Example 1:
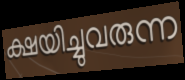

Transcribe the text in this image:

ക്ഷയിച്ചുവരുന്ന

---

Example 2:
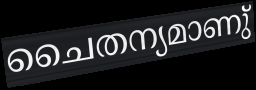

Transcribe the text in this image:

ചൈതന്യമാണു്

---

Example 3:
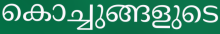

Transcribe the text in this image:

കൊച്ചുങ്ങളുടെ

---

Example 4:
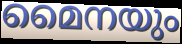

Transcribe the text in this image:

മൈനയും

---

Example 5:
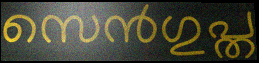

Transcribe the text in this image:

സെൻഗുപ്ത